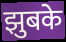
झुबके